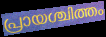
പ്രായശ്ചിത്തം